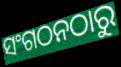
ସଂଗଠନଠାରୁ